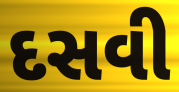
દસવી